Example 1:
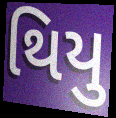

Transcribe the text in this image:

થિયુ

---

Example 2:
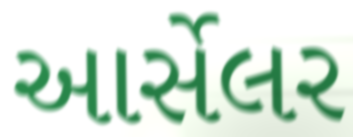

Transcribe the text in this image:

આર્સેલર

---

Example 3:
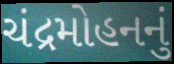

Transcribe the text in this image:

ચંદ્રમોહનનું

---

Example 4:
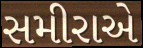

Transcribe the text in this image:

સમીરાએ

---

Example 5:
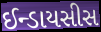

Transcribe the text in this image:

ઈન્ડાયસીસ